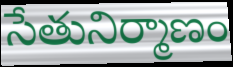
సేతునిర్మాణం